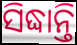
ସିଦ୍ଧାନ୍ତି